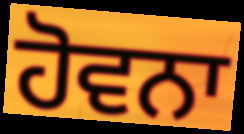
ਹੋਵਨਾ